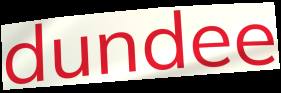
dundee